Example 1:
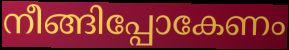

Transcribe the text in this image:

നീങ്ങിപ്പോകേണം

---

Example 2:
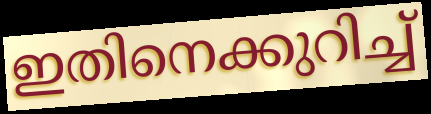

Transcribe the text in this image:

ഇതിനെക്കുറിച്ച്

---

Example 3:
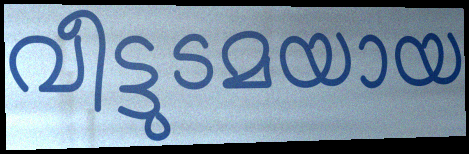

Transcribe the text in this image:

വീട്ടുടമയായ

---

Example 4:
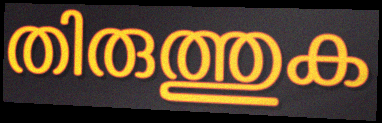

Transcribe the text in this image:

തിരുത്തുക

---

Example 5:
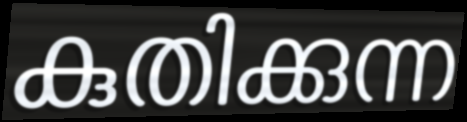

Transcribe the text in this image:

കുതിക്കുന്ന